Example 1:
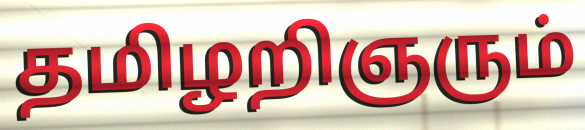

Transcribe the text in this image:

தமிழறிஞரும்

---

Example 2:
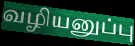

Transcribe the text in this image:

வழியனுப்பு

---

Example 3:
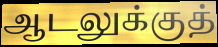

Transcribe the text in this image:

ஆடலுக்குத்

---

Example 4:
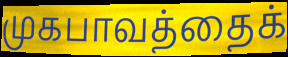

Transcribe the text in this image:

முகபாவத்தைக்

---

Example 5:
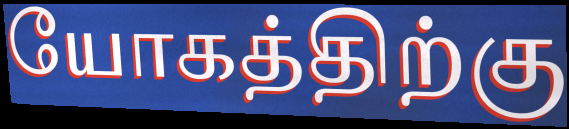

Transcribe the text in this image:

யோகத்திற்கு